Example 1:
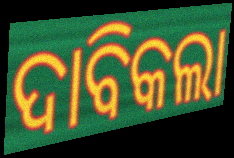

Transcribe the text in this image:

ଦାବିକଲା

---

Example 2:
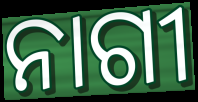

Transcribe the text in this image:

ନାଗୀ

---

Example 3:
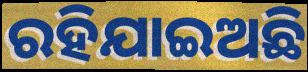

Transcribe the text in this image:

ରହିଯାଇଅଛି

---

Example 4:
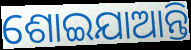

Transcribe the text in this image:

ଶୋଇଯାଆନ୍ତି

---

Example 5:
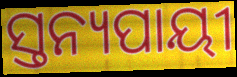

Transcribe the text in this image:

ସ୍ତନ୍ୟପାୟୀ